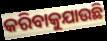
କରିବାକୁଯାଉଛି